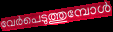
വേർപെടുത്തുമ്പോൾ